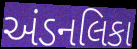
અંડનલિકા